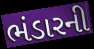
ભંડારની